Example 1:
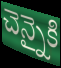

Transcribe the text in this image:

చెన్నైకి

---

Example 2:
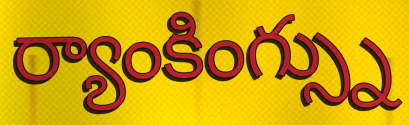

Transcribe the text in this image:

ర్యాంకింగ్స్ను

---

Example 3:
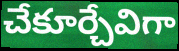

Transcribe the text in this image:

చేకూర్చేవిగా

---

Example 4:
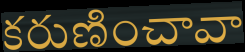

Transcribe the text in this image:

కరుణించావా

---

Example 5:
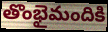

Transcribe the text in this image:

తొంభైమందికి